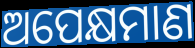
ଅପେକ୍ଷମାଣ